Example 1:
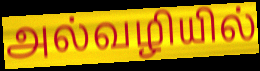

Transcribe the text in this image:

அல்வழியில்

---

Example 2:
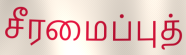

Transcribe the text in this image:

சீரமைப்புத்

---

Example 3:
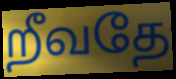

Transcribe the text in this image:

றீவதே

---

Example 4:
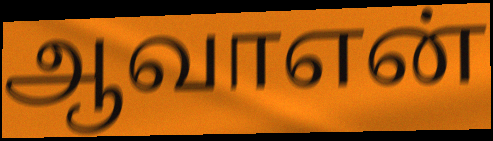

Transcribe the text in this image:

ஆவாஎன்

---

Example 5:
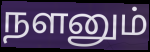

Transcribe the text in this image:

நளனும்